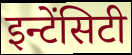
इन्टेंसिटी